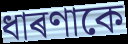
ধাৰণাকে